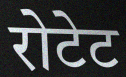
रोटेट